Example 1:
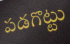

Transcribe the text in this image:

పడగొట్టు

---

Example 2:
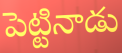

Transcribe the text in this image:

పెట్టినాడు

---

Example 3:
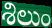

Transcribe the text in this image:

శిలుం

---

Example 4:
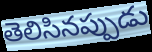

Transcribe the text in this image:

తెలిసినప్పుడు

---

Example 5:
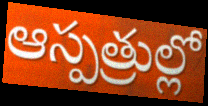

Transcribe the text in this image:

ఆస్పత్రుల్లో